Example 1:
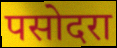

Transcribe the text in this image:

पसोदरा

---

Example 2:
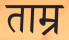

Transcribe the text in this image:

ताम्र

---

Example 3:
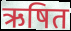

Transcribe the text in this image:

ऋषित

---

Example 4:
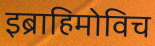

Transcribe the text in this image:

इब्राहिमोविच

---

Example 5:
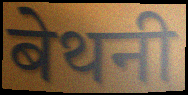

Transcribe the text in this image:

बेथनी